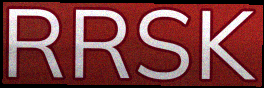
RRSK